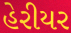
હેરીયર